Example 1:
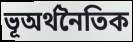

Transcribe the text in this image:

ভূঅর্থনৈতিক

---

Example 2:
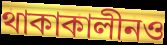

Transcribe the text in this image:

থাকাকালীনও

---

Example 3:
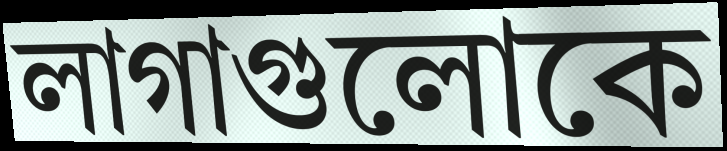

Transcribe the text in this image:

লাগাগুলোকে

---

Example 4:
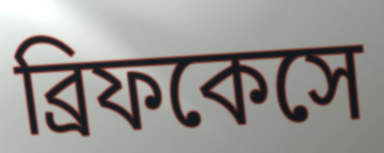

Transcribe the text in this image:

ব্রিফকেসে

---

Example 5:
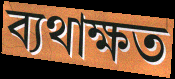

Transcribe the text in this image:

ব্যথাক্ষত